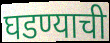
घडण्याची